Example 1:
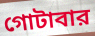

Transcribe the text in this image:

গোটাবার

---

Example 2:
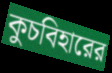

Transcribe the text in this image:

কুচবিহারের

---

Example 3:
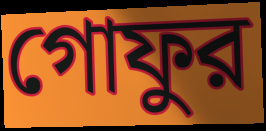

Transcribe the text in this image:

গোফুর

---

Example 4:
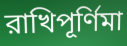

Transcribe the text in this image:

রাখিপূর্ণিমা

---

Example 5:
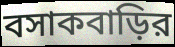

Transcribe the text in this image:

বসাকবাড়ির